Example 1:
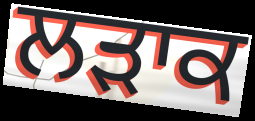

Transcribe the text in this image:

ਲੜਾਕ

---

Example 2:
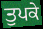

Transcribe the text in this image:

ਤੁਪਕੇ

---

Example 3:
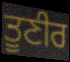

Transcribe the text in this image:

ਤੂਣੀਰ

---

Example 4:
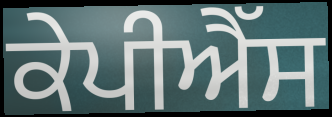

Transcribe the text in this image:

ਕੇਪੀਐੱਸ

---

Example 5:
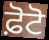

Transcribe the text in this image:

ਫ਼ੋਟੋ